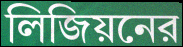
লিজিয়নের